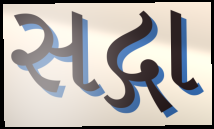
સદ્ગા